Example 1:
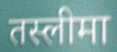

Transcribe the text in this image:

तस्लीमा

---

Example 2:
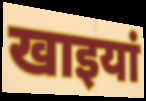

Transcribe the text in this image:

खाइयां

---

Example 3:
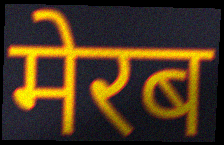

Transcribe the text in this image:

मेरब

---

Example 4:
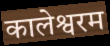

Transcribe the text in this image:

कालेश्वरम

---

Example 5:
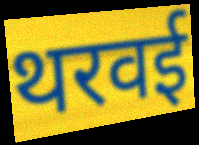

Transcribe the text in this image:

थरवई